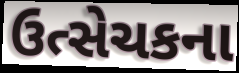
ઉત્સેચકના